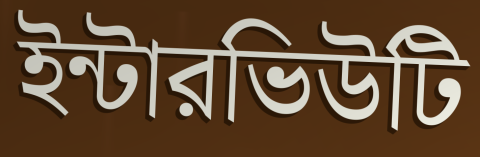
ইন্টারভিউটি